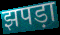
झपड़ा